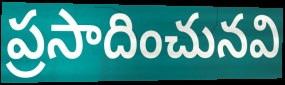
ప్రసాదించునవి